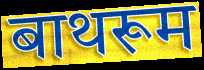
बाथरूम